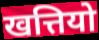
खत्तियो